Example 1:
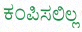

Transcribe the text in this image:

ಕಂಪಿಸಲಿಲ್ಲ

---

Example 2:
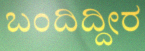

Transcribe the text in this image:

ಬಂದಿದ್ದೀರ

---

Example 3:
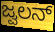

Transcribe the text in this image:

ಜ್ವಲನ್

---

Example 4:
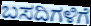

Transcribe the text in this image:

ಬಸದಿಗಳಿಗೆ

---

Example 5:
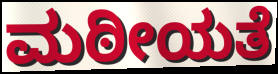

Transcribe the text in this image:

ಮಠೀಯತೆ